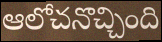
ఆలోచనొచ్చింది